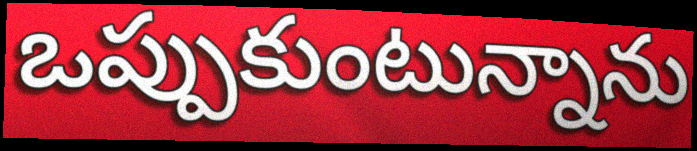
ఒప్పుకుంటున్నాను